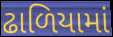
ઢાળિયામાં